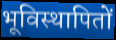
भूविस्थापितों